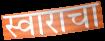
स्वाराचा